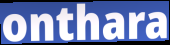
onthara